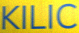
KILIC